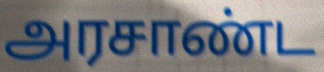
அரசாண்ட